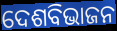
ଦେଶବିଭାଜନ